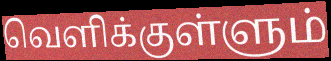
வெளிக்குள்ளும்